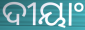
ଦୀୟାଂ